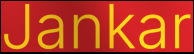
Jankar